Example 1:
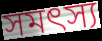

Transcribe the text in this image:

সমৎস্য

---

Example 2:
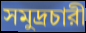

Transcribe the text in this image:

সমুদ্রচারী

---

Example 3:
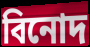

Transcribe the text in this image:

বিনোদ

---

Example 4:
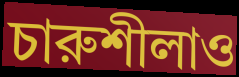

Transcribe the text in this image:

চারুশীলাও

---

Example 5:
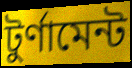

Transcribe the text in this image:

টুর্ণামেন্ট